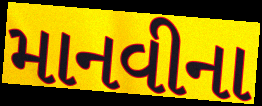
માનવીના